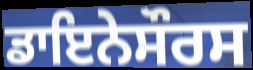
ਡਾਇਨੇਸੌਰਸ